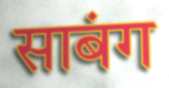
साबंग